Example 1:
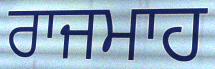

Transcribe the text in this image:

ਰਾਜਮਾਹ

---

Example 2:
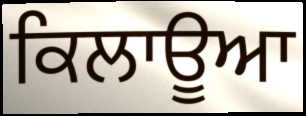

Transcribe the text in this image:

ਕਿਲਾਊਆ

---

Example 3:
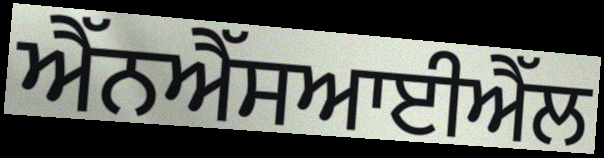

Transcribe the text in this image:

ਐੱਨਐੱਸਆਈਐੱਲ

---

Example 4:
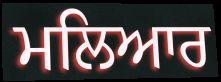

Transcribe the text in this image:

ਮਲਿਆਰ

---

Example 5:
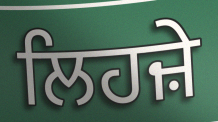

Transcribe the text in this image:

ਲਿਹਜ਼ੇ